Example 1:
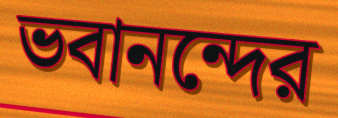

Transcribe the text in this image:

ভবানন্দের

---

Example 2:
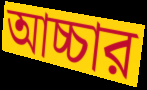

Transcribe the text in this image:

আচ্চার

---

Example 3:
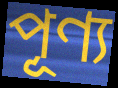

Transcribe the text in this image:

পূণ্য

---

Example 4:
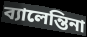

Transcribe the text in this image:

ব্যালেন্তিনা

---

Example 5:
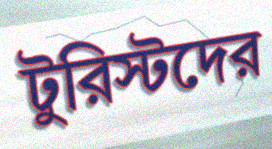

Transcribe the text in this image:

টুরিস্টদের